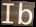
Ib